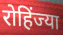
रोहिंज्या